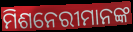
ମିଶନେରୀମାନଙ୍କ